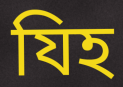
যিহ